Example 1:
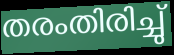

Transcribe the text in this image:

തരംതിരിച്ചു്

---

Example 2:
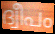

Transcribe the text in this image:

ദ്വീപം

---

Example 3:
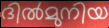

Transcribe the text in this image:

ദിൽമുനിയ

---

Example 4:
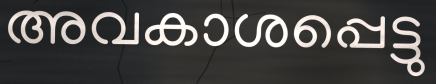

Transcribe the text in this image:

അവകാശപ്പെട്ടു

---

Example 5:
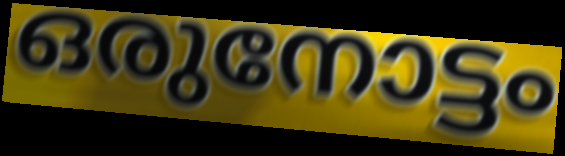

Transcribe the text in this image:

ഒരുനോട്ടം